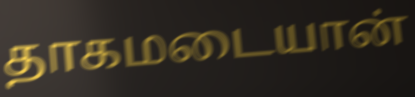
தாகமடையான்